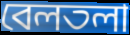
বেলতলা